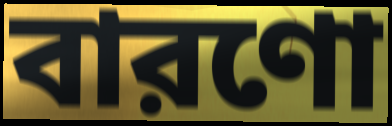
বারণো